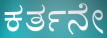
ಕರ್ತನೇ